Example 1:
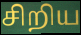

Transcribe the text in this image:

சிறிய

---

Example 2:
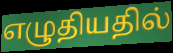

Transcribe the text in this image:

எழுதியதில்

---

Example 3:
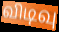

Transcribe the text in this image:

விடிவு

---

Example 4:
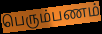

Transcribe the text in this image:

பெரும்பணம்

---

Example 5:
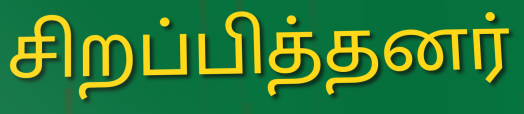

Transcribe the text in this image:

சிறப்பித்தனர்